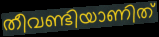
തീവണ്ടിയാണിത്